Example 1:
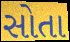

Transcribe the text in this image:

સોતા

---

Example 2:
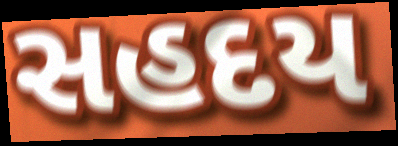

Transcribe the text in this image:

સહદય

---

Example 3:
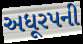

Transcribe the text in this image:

અધૂરપની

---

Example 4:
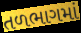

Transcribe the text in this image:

તળભાગમાં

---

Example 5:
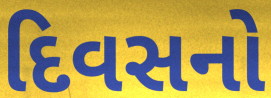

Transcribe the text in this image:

દિવસનો